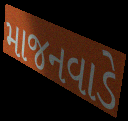
માજનવાડે